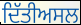
ਦਿੱਤੀਅਸਲ